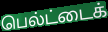
பெல்ட்டைக்